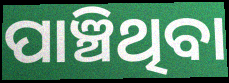
ପାଞ୍ଚିଥିବା